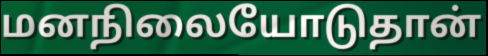
மனநிலையோடுதான்